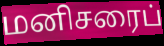
மனிசரைப்